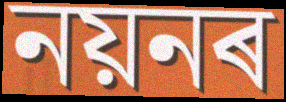
নয়নৰ